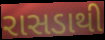
રાસડાથી